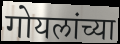
गोयलांच्या